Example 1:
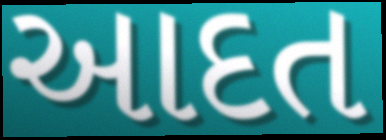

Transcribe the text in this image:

આદત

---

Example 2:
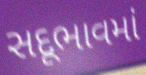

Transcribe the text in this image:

સદૂભાવમાં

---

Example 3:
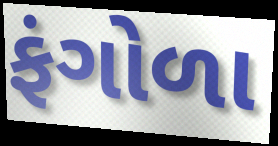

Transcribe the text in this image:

ફંગોળા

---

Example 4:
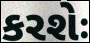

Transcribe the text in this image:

કરશેઃ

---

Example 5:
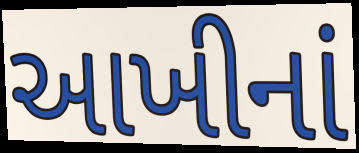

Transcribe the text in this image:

આખીનાં